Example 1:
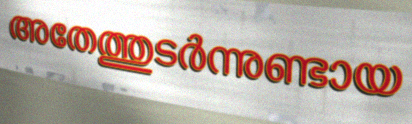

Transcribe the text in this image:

അതേത്തുടർന്നുണ്ടായ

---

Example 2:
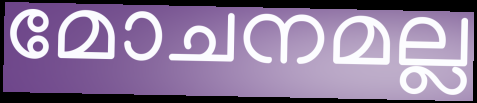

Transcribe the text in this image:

മോചനമല്ല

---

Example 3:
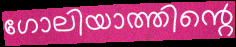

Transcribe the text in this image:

ഗോലിയാത്തിന്റെ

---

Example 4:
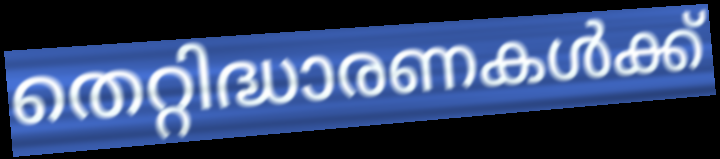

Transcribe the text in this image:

തെറ്റിദ്ധാരണകൾക്ക്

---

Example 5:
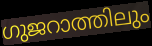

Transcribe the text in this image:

ഗുജറാത്തിലും